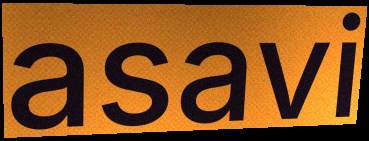
asavi